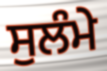
ਸੁਲੰਮੇ